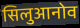
सिलुआनोव